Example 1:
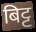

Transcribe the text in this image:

बिट्ट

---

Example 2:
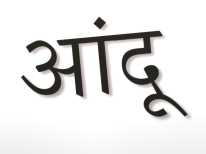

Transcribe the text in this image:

आंदू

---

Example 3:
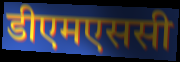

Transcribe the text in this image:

डीएमएससी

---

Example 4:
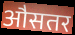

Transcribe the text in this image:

औसतर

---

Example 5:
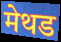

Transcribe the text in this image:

मेथड